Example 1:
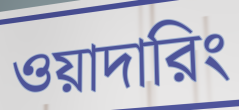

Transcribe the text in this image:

ওয়াদারিং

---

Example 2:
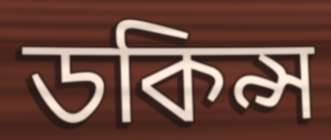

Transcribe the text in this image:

ডকিন্স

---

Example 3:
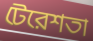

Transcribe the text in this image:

টেরেশতা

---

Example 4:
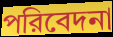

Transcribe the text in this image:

পরিবেদনা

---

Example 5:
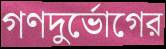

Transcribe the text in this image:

গণদুর্ভোগের